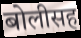
बोलीसह